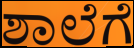
ಶಾಲೆಗೆ